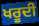
ਖਰੂਦੀ